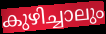
കുഴിച്ചാലും